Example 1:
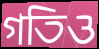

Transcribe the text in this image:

গতিও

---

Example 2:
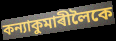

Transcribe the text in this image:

কন্যাকুমাৰীলৈকে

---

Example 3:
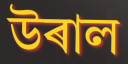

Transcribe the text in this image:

উৰাল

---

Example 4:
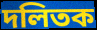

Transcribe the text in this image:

দলিতক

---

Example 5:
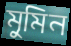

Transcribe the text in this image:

মুমিন